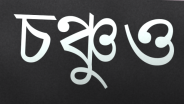
চঞ্চুও